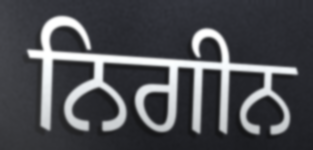
ਨਿਗੀਨ